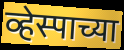
व्हेस्पाच्या